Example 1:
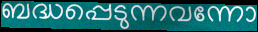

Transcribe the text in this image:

ബദ്ധപ്പെടുന്നവന്നോ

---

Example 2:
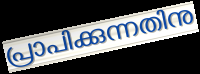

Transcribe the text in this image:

പ്രാപിക്കുന്നതിനു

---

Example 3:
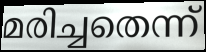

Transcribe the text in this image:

മരിച്ചതെന്ന്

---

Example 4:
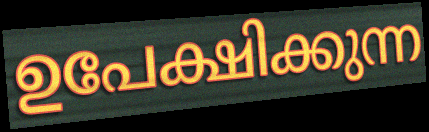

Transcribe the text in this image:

ഉപേക്ഷിക്കുന്ന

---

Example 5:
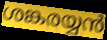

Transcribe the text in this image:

ശങ്കരയ്യൻ